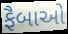
ફૈબાઓ